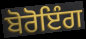
ਬੋਰੋਇੰਗ